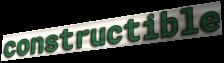
constructible